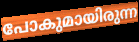
പോകുമായിരുന്ന